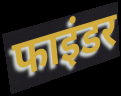
फाइंडर